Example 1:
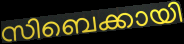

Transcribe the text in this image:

സിബെക്കായി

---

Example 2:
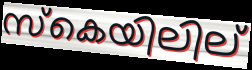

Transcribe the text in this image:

സ്കെയിലില്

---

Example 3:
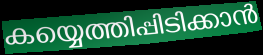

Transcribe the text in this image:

കയ്യെത്തിപ്പിടിക്കാൻ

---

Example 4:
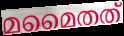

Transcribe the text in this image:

മമൈതത്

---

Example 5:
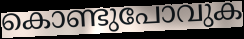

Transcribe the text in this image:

കൊണ്ടുപോവുക